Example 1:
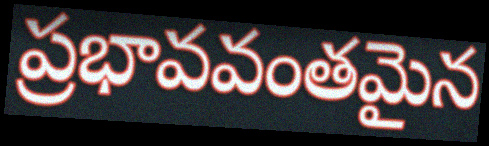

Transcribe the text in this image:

ప్రభావవంతమైన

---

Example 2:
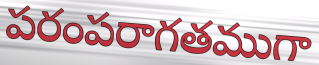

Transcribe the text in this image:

పరంపరాగతముగా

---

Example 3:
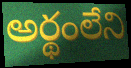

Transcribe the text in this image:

అర్థంలేని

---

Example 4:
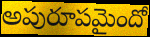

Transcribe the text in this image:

అపురూపమైందో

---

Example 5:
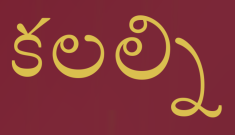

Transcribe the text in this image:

కలల్ని